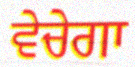
ਵੇਚੇਗਾ